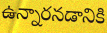
ఉన్నారనడానికి